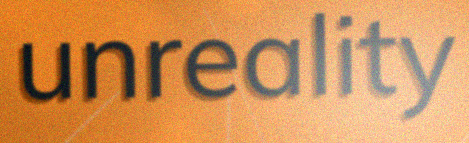
unreality